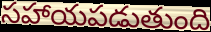
సహాయపడుతుంది